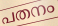
പതനം